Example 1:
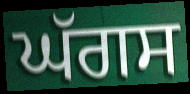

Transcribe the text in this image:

ਘੱਗਸ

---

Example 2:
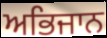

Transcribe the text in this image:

ਅਭਿਜਾਨ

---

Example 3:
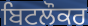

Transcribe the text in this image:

ਬਿਟਲੌਕਰ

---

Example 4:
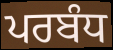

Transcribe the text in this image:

ਪਰਬੰਧ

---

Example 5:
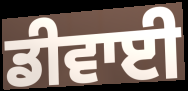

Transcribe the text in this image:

ਡੀਵਾਈ